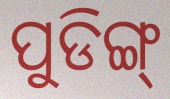
ପୁଡିଙ୍ଗ୍